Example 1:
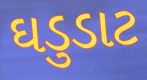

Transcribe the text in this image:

ઘડુડાટ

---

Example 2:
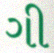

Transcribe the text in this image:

ગી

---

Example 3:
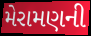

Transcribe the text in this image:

મેરામણની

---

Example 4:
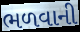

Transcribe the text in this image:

ભળવાની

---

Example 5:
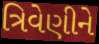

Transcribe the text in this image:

ત્રિવેણીને